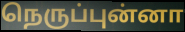
நெருப்புன்னா